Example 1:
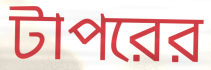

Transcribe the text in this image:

টাপরের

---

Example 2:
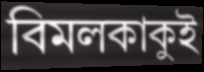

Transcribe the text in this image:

বিমলকাকুই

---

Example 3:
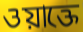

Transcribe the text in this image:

ওয়াক্তে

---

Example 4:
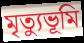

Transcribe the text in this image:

মৃত্যুভূমি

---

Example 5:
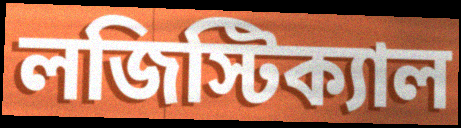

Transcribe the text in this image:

লজিস্টিক্যাল